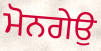
ਮੋਨਗੇਉ